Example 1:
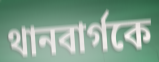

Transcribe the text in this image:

থানবার্গকে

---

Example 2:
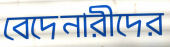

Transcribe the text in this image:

বেদেনারীদের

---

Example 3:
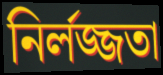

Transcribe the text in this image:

নির্লজ্জতা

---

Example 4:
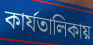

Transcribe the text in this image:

কার্যতালিকায়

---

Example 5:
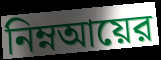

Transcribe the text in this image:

নিম্নআয়ের